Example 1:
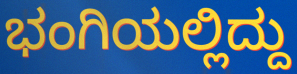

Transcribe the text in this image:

ಭಂಗಿಯಲ್ಲಿದ್ದು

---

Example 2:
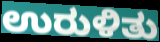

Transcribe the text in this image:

ಉರುಳಿತು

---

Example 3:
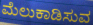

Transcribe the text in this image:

ಮೆಲುಕಾಡಿಸುವ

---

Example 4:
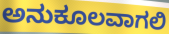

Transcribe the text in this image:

ಅನುಕೂಲವಾಗಲಿ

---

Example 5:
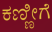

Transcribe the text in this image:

ಕಣ್ಣೀಗೆ